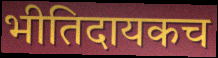
भीतिदायकच